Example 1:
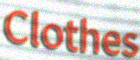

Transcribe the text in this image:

Clothes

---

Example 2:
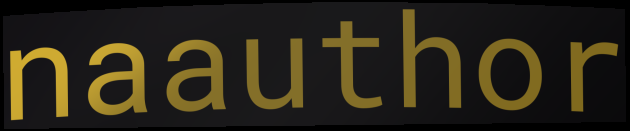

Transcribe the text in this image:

naauthor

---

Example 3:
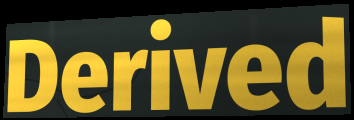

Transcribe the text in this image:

Derived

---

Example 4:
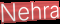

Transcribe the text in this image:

Nehra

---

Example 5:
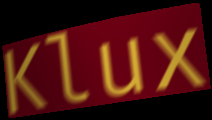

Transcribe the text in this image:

Klux